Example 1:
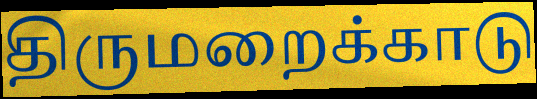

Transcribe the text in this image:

திருமறைக்காடு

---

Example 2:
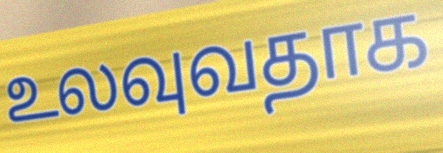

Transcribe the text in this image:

உலவுவதாக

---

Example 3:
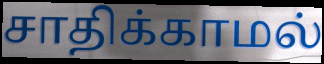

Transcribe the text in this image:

சாதிக்காமல்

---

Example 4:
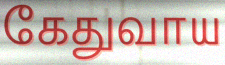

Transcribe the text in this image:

கேதுவாய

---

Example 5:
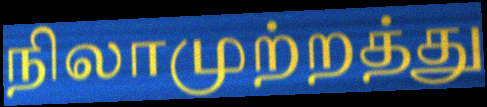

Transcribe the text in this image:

நிலாமுற்றத்து